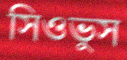
সিওভুস